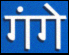
गंगे